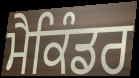
ਮੈਕਿੰਡਰ